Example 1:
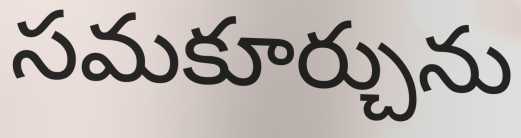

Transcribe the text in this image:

సమకూర్చును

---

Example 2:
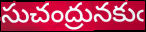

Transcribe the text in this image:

సుచంద్రునకుఁ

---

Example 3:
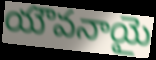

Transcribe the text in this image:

యౌవనాయై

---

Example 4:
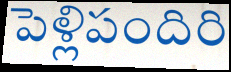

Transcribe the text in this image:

పెళ్లిపందిరి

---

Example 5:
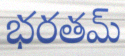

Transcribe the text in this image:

భరతమ్